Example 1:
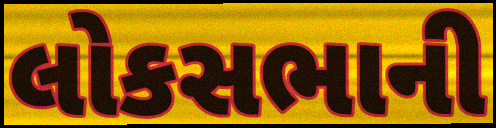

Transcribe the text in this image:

લોકસભાની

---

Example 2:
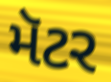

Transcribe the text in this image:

મૅટર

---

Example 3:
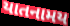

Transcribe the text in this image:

યાતનામય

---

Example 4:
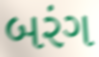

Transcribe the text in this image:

બરંગ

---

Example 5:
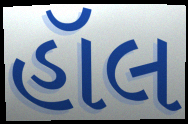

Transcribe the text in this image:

હૉલ